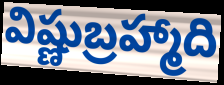
విష్ణుబ్రహ్మాది